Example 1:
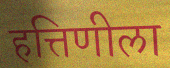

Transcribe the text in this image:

हत्तिणीला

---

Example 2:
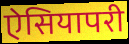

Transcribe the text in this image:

ऐसियापरी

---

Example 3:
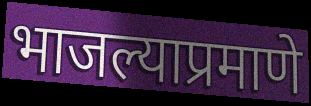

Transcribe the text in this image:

भाजल्याप्रमाणे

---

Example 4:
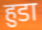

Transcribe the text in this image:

हुडा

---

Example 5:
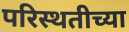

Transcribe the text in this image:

परिस्थतीच्या